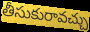
తీసుకురావచ్చు